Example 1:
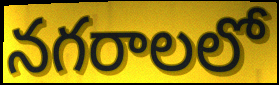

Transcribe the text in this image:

నగరాలలో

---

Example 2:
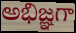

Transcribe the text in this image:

అభిజ్ఞగా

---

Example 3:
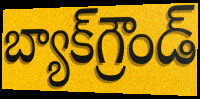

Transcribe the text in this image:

బ్యాక్‌గ్రౌండ్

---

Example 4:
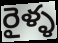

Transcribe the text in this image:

రైళ్ళ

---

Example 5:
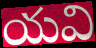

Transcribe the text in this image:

యవి